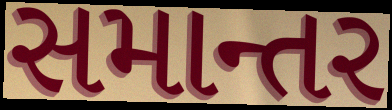
સમાન્તર